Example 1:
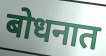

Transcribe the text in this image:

बोधनात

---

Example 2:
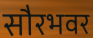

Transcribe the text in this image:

सौरभवर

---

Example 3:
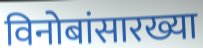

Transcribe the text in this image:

विनोबांसारख्या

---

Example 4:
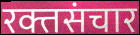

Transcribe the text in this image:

रक्तसंचार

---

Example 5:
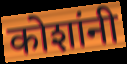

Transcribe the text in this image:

कोशांनी